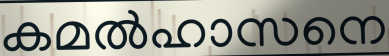
കമൽഹാസനെ